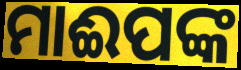
ମାଈପଙ୍କ